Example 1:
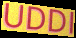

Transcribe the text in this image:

UDDI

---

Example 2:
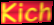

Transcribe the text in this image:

Kich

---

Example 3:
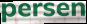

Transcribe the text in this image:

persen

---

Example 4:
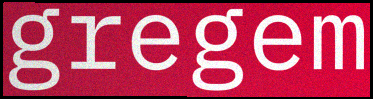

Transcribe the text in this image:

gregem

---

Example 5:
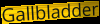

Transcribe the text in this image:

Gallbladder